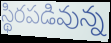
స్థిరపడివున్న